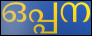
ഒപ്പന